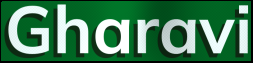
Gharavi